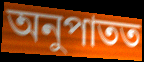
অনুপাতত